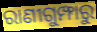
ରାଣୀଗୁମ୍ଫାରୁ